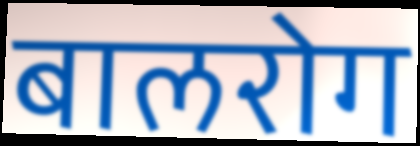
बालरोग